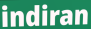
indiran